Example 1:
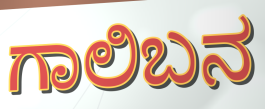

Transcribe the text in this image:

ಗಾಲಿಬನ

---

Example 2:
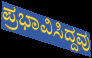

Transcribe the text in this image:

ಪ್ರಭಾವಿಸಿದ್ದವು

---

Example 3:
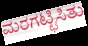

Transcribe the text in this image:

ಮರಗಟ್ಟಿಸಿತು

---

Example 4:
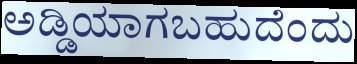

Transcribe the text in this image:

ಅಡ್ಡಿಯಾಗಬಹುದೆಂದು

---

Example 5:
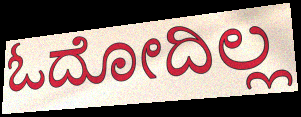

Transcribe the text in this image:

ಓದೋದಿಲ್ಲ